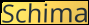
Schima